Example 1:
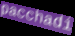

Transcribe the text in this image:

pacchadi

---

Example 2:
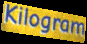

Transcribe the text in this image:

Kilogram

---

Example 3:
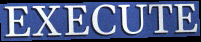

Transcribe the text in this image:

EXECUTE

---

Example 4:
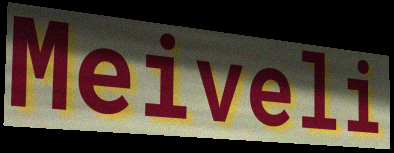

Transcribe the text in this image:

Meiveli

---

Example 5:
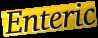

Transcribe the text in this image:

Enteric